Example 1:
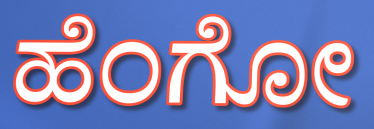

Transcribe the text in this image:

ಹೆಂಗೋ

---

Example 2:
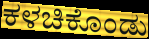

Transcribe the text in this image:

ಕಳಚಿಕೊಂಡು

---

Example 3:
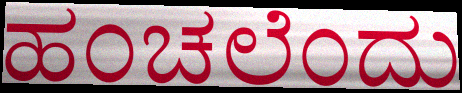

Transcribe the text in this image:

ಹಂಚಲೆಂದು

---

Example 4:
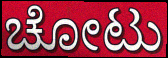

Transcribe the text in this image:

ಚೋಟು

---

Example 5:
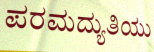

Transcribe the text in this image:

ಪರಮದ್ಯುತಿಯು